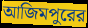
আজিমপুরের